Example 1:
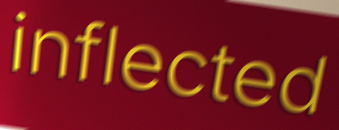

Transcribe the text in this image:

inflected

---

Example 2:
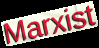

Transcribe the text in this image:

Marxist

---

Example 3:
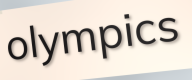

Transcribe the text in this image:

olympics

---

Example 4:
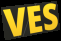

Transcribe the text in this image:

VES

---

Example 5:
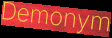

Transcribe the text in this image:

Demonym